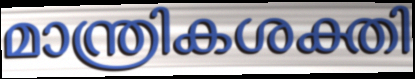
മാന്ത്രികശക്തി